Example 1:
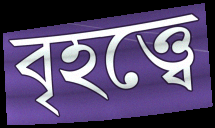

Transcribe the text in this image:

বৃহত্ত্বে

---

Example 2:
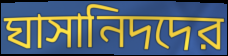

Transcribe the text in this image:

ঘাসানিদদের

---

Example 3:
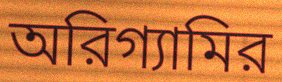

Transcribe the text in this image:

অরিগ্যামির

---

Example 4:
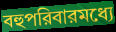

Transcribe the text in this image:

বহুপরিবারমধ্যে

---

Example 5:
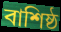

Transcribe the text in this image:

বাশিষ্ঠ